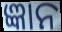
ଜ୍ଞାନ